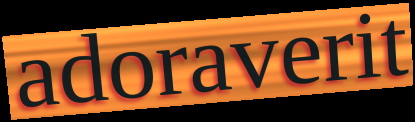
adoraverit